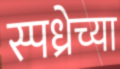
स्पध्रेच्या